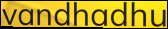
vandhadhu